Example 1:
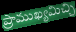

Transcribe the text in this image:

ప్రాముఖ్యమిచ్చి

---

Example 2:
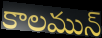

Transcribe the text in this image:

కాలమున్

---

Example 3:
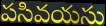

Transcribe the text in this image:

పసివయసు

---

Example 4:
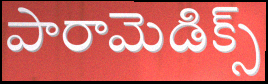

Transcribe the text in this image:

పారామెడిక్స్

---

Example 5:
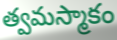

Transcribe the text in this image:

త్వమస్మాకం